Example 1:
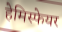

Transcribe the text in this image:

हेमिस्फेयर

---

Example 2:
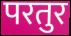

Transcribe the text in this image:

परतुर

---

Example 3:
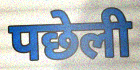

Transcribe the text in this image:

पछेली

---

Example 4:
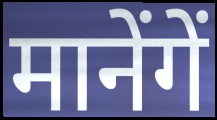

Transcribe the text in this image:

मानेंगें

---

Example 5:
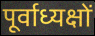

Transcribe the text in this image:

पूर्वाध्यक्षों